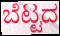
ಬೆಟ್ಟದ